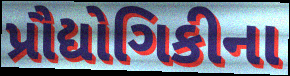
પ્રૌદ્યોગિકીના